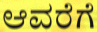
ಆವರೆಗೆ